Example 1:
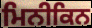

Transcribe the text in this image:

ਮਿਨੀਕਿਨ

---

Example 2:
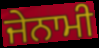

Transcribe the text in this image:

ਜੇਨਾਮੀ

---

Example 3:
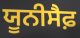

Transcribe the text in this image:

ਯੂਨੀਸੈਫ਼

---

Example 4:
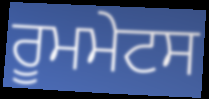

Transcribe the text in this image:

ਰੂਮਮੇਟਸ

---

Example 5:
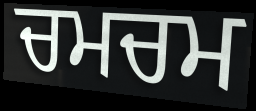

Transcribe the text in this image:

ਚਮਚਮ